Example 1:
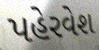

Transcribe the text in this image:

પહેરવેશ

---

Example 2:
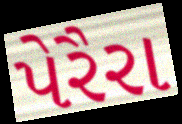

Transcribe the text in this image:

પેરૈરા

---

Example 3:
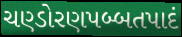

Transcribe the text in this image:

ચણ્ડોરણપબ્બતપાદં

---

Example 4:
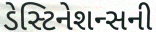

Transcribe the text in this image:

ડેસ્ટિનેશન્સની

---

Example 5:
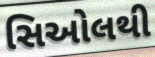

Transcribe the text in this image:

સિઓલથી